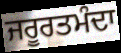
ਜਰੂਰਤਮੰਦਾ